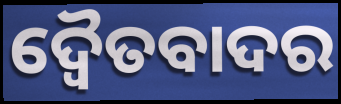
ଦ୍ୱୈତବାଦର